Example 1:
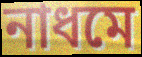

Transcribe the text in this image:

নাধমে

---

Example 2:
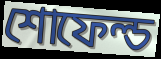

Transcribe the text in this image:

শোফেল্ড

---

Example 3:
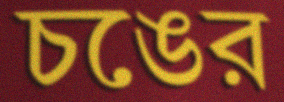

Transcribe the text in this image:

চঙের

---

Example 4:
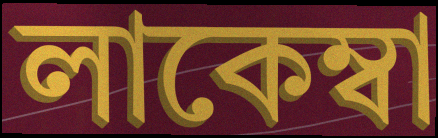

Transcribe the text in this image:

লাকেম্বা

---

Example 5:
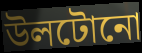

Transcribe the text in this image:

উলটোনো